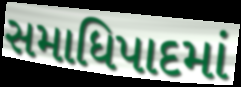
સમાધિપાદમાં